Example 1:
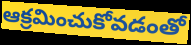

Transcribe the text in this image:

ఆక్రమించుకోవడంతో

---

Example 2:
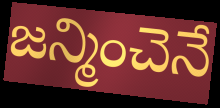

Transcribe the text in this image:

జన్మించెనే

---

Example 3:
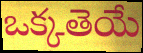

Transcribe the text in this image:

ఒక్కతెయే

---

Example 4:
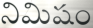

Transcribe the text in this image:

నిమిషం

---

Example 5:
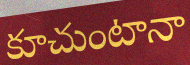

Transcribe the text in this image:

కూచుంటానా